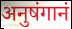
अनुषंगानं